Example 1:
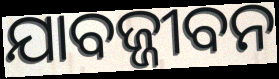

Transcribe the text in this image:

ଯାବଜ୍ଜୀବନ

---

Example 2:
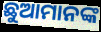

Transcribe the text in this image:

ଛୁଆମାନଙ୍କ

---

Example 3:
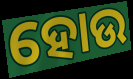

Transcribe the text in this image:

ହୋଉ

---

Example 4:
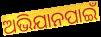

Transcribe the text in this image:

ଅଭିଯାନପାଇଁ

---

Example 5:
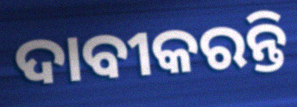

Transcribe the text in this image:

ଦାବୀକରନ୍ତି